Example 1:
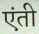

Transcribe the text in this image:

एंती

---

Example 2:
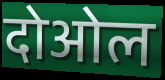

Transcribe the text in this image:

दोओल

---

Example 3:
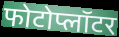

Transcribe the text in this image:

फोटोप्लॉटर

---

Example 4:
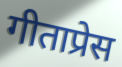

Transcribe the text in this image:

गीताप्रेस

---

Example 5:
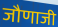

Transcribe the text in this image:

जौणाजी